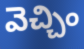
వెచ్చిం